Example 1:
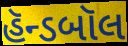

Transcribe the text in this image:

હૅન્ડબૉલ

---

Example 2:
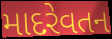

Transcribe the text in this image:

માદરેવતન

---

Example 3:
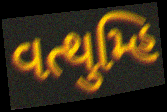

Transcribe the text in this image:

વત્થુમ્હિ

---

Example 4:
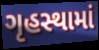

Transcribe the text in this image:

ગૃહસ્થામાં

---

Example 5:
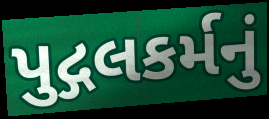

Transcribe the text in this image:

પુદ્ગલકર્મનું